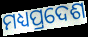
ମଧ୍ୟପ୍ରଦେଶ